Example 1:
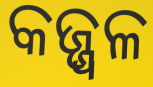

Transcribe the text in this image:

କଜ୍ଜ୍ୱଳ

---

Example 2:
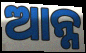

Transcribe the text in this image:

ଆନ୍ନ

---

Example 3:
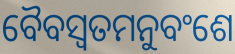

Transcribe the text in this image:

ବୈବସ୍ଵତମନୁବଂଶେ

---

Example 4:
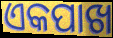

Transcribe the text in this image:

ଏକପାଖ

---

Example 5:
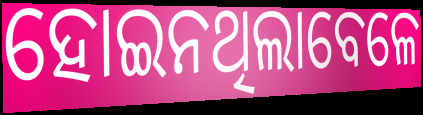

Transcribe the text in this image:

ହୋଇନଥିଲାବେଳେ